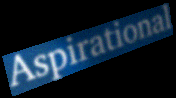
Aspirational